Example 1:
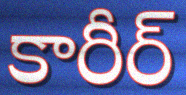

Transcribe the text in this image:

కారీర్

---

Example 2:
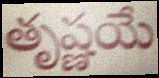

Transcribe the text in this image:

తృష్ణయే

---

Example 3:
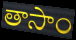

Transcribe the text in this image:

తాసాం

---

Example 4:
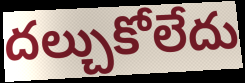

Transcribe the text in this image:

దల్చుకోలేదు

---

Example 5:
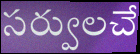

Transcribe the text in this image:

సర్వులచే